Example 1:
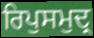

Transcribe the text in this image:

ਰਿਪੁਸਮੁਦ੍ਰ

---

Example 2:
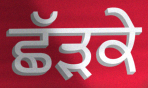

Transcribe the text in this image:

ਛੱੜਕੇ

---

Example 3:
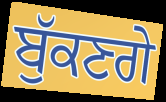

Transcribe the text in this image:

ਬੁੱਕਣਗੇ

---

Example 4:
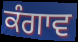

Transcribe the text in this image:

ਕੰਗਾਵ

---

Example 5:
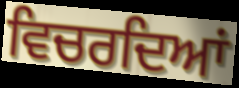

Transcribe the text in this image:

ਵਿਚਰਦਿਆਂ